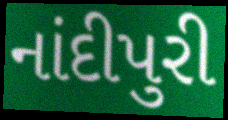
નાંદીપુરી